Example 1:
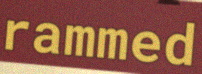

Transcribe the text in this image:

rammed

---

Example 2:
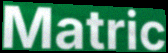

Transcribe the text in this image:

Matric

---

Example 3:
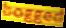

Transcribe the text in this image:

bogged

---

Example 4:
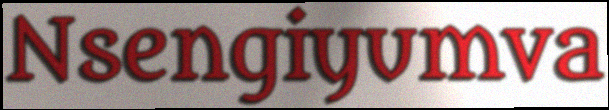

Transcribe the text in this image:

Nsengiyumva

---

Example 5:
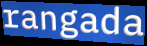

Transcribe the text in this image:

rangada